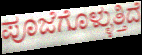
ಪೂಜೆಗೊಳ್ಳುತ್ತಿದೆ